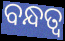
ବନ୍ଧତ୍ୱ